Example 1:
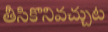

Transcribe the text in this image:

తీసికొనివచ్చుట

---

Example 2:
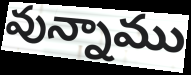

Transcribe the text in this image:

వున్నాము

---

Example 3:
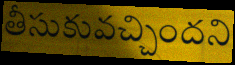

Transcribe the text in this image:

తీసుకువచ్చిందని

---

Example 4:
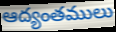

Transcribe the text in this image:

ఆద్యంతములు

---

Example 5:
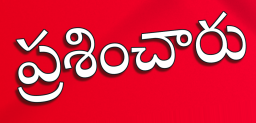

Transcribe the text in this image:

ప్రశించారు